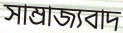
সাম্রাজ্যবাদ